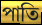
পাতি